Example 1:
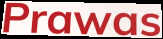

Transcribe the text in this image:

Prawas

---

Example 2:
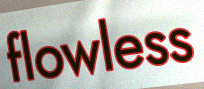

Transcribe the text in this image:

flowless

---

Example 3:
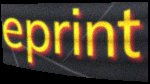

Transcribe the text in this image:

eprint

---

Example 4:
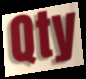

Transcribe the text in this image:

Qty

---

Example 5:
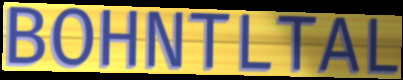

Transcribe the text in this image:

BOHNTLTAL